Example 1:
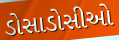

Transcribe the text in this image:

ડોસાડોસીઓ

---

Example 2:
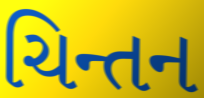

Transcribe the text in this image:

ચિન્તન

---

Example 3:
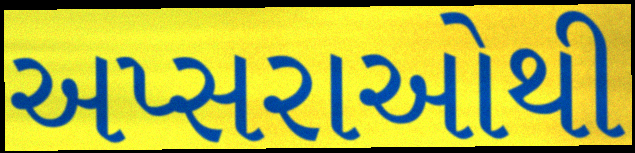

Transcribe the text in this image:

અપ્સરાઓથી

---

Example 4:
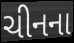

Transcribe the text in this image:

ચીનના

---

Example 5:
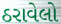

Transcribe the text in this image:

ઠરાવેલો